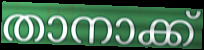
താനാക്ക്